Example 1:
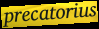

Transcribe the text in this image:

precatorius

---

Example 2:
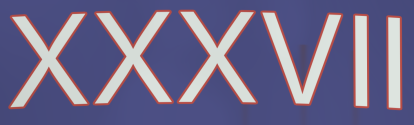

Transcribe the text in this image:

XXXVII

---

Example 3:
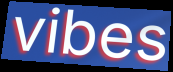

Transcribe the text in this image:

vibes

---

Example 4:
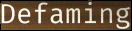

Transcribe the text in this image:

Defaming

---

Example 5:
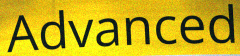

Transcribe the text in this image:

Advanced